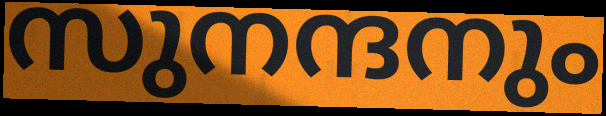
സുനന്ദനും